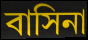
বাসিনা